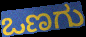
ಒಣಗು